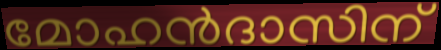
മോഹൻദാസിന്